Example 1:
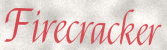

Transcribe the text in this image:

Firecracker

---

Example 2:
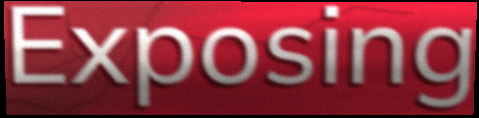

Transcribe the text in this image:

Exposing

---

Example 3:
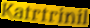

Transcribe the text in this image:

Katrtrinil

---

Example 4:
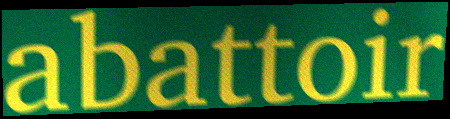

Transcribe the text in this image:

abattoir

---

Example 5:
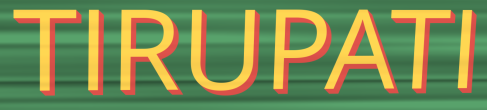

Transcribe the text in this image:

TIRUPATI